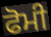
ਫੋਮੀ